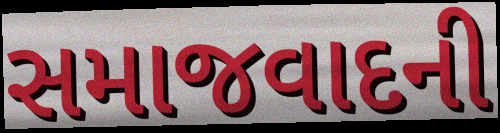
સમાજવાદની